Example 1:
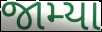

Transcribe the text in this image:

જામ્યા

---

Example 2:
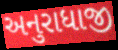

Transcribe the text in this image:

અનુરાધાજી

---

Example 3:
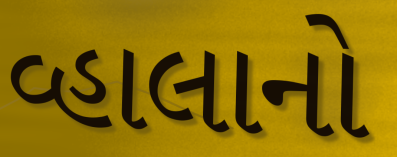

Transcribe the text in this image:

વ્હાલાનો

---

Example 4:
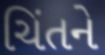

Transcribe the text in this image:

ચિંતને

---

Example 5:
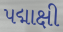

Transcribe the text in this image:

પદ્માક્ષી